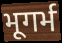
भूगर्भ